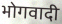
भोगवादी